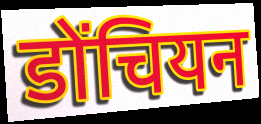
डोंचियन